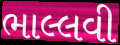
ભાલ્લવી